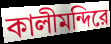
কালীমন্দিরে